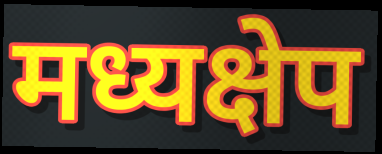
मध्यक्षेप